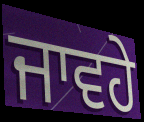
ਜਾਵਹੇ